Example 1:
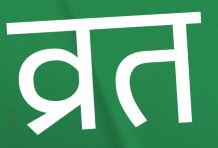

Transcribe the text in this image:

व्रत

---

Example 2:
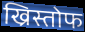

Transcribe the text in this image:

ख्रिस्तोफ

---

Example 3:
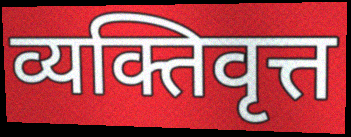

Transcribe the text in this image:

व्यक्तिवृत्त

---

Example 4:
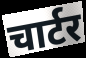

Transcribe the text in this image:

चार्टर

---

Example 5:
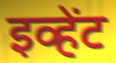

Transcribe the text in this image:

इव्हेंट